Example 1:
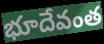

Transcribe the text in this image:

భూదేవంత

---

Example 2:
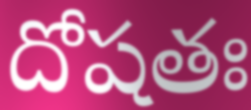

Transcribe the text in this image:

దోషతః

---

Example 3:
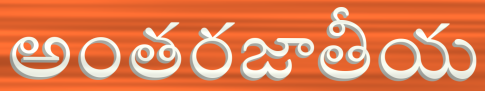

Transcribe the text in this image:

అంతరజాతీయ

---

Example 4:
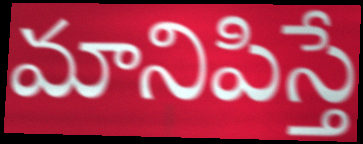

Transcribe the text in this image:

మానిపిస్తే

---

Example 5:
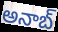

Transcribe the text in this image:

అనాబ్